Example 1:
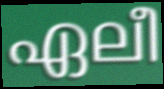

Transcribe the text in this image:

ഏലീ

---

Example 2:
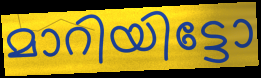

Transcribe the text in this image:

മാറിയിട്ടോ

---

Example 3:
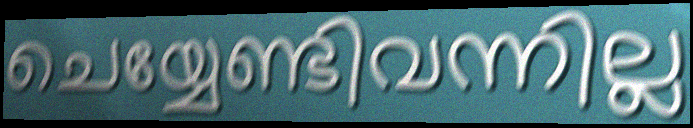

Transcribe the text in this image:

ചെയ്യേണ്ടിവന്നില്ല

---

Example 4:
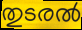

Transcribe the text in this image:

തുടരൽ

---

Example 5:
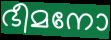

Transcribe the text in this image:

ഭീമനോ